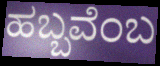
ಹಬ್ಬವೆಂಬ